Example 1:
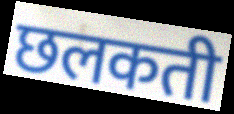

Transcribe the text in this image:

छलकती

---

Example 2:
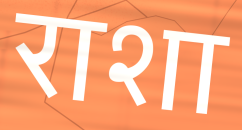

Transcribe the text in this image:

राशा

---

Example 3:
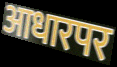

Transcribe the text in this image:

आधारपर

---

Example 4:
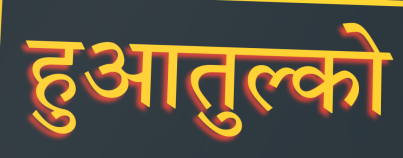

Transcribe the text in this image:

हुआतुल्को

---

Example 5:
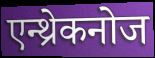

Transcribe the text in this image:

एन्थ्रेकनोज